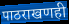
पाठराखणही